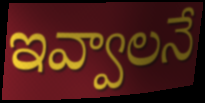
ఇవ్వాలనే